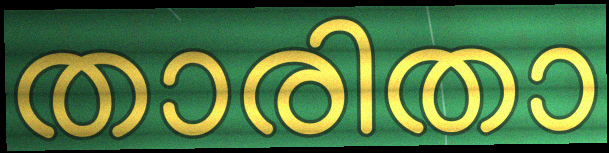
താരിതാ